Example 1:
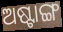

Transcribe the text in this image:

ଅଷ୍ଟାଙ୍ଗ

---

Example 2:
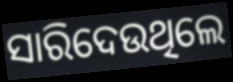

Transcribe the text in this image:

ସାରିଦେଉଥିଲେ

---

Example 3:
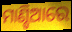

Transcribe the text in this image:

ମାଣ୍ଡିଆରେ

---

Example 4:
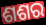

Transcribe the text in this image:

ଶଶର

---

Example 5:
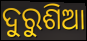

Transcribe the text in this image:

ଦୁରୁଶିଆ